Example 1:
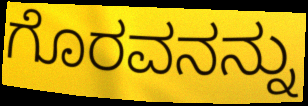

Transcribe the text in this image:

ಗೊರವನನ್ನು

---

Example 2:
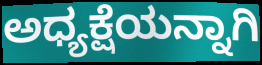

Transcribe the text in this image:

ಅಧ್ಯಕ್ಷೆಯನ್ನಾಗಿ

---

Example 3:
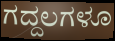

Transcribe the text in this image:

ಗದ್ದಲಗಳೂ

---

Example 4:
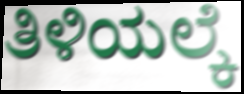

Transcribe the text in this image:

ತಿಳಿಯಲ್ಕೆ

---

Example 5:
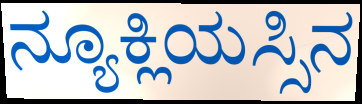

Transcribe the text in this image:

ನ್ಯೂಕ್ಲಿಯಸ್ಸಿನ